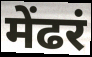
मेंढरं